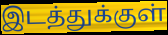
இடத்துக்குள்